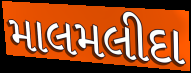
માલમલીદા